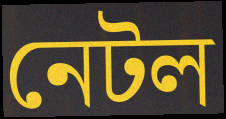
নেটল